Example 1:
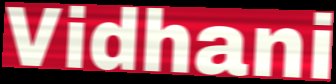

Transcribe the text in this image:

Vidhani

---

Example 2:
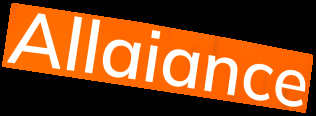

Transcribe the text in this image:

Allaiance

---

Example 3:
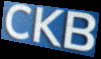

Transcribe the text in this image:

CKB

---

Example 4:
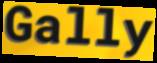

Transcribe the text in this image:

Gally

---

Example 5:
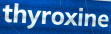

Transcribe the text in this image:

thyroxine